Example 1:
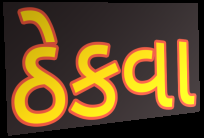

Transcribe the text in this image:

ઠેકવા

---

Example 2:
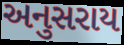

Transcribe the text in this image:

અનુસરાય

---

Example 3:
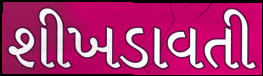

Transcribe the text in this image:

શીખડાવતી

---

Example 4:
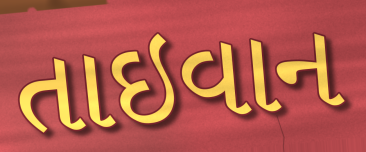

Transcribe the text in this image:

તાઇવાન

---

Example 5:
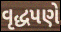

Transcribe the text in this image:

વૃદ્ધપણે